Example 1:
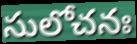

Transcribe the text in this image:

సులోచనః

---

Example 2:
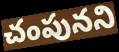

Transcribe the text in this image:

చంపునని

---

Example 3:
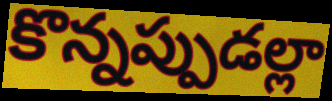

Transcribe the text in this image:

కొన్నప్పుడల్లా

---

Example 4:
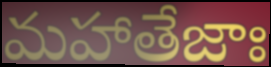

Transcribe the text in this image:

మహాతేజాః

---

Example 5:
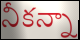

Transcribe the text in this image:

నీకన్నా